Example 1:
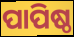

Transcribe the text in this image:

ପାପିଷ୍ଠ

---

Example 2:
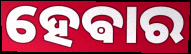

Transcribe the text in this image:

ହେଵାର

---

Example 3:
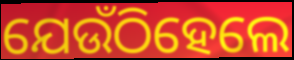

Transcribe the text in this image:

ଯେଉଁଠିହେଲେ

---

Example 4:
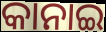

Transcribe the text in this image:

କାନାଇ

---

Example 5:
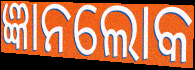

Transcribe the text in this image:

ଜ୍ଞାନଲୋକ